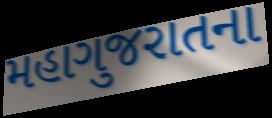
મહાગુજરાતના